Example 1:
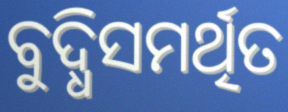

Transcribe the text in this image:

ବୁଦ୍ଧିସମର୍ଥିତ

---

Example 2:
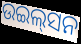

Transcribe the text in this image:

ଉଇଲ୍‌ସନ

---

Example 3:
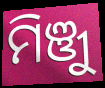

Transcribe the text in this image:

ମିଞ୍ଜୁ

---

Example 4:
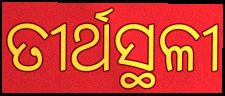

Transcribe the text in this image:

ତୀର୍ଥସ୍ଥଳୀ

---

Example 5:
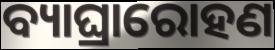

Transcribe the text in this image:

ବ୍ୟାଘ୍ରାରୋହଣ